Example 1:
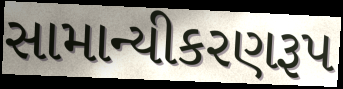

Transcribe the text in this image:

સામાન્યીકરણરૂપ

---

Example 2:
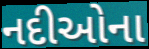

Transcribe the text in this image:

નદીઓના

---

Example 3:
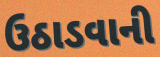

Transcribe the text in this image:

ઉઠાડવાની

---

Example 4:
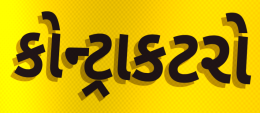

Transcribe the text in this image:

કોન્ટ્રાકટરો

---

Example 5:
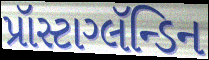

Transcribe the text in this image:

પ્રૉસ્ટાગ્લૅન્ડિન